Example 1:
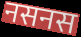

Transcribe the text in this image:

नसनस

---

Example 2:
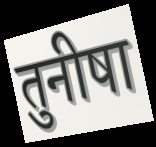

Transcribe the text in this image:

तुनीषा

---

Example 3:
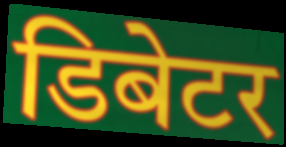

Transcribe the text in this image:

डिबेटर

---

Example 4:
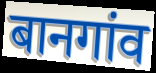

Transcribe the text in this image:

बानगांव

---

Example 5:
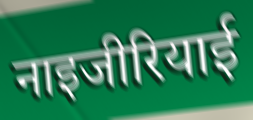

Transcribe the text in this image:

नाइजीरियाई